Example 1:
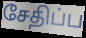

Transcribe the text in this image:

சேதிப்ப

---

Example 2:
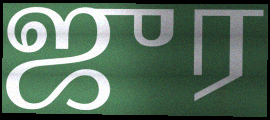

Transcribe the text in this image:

ஜுர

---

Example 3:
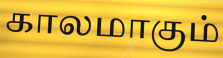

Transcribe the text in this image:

காலமாகும்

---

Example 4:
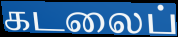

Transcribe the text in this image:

கடலைப்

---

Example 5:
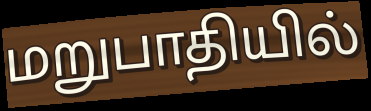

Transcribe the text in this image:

மறுபாதியில்